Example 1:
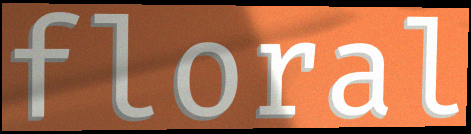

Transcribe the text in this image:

floral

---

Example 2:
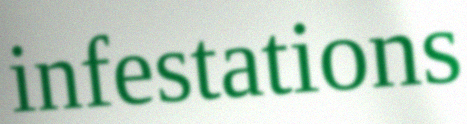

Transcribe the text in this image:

infestations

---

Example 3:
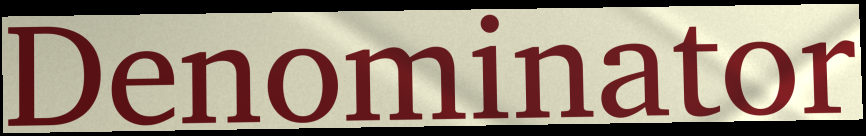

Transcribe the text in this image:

Denominator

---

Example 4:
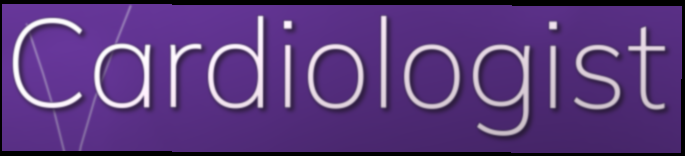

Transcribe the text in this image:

Cardiologist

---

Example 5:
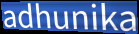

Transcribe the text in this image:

adhunika